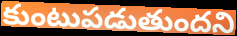
కుంటుపడుతుందని